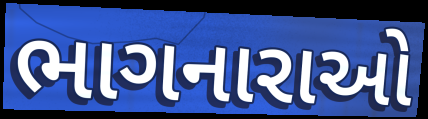
ભાગનારાઓ